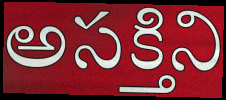
అసక్తిని